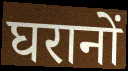
घरानों